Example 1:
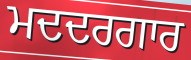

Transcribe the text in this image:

ਮਦਦਰਗਾਰ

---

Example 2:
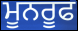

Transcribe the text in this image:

ਮੂਨਰੂਫ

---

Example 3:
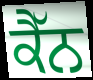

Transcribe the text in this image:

ਕੈੱਨ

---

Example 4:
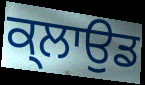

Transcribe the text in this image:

ਕ੍ਲਾਉਡ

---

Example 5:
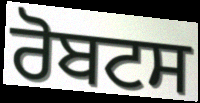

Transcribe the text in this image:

ਰੋਬਟਸ